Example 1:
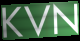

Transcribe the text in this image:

KVN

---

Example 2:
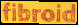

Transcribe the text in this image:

fibroid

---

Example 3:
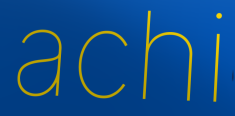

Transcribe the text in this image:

achi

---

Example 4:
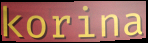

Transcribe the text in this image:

korina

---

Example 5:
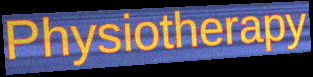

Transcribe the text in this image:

Physiotherapy